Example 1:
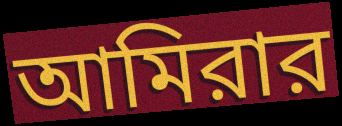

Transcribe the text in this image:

আমিরার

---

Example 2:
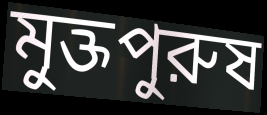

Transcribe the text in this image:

মুক্তপুরুষ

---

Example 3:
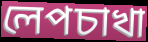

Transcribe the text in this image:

লেপচাখা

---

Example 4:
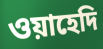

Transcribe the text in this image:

ওয়াহেদি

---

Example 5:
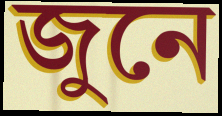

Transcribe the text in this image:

জুনে